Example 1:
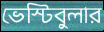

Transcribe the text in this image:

ভেস্টিবুলার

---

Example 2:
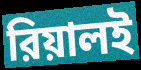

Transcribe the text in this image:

রিয়ালই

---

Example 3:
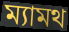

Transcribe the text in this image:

ম্যামথ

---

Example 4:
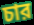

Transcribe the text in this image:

চার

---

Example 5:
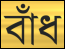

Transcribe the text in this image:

বাঁধ